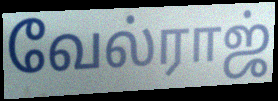
வேல்ராஜ்